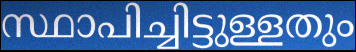
സ്ഥാപിച്ചിട്ടുള്ളതും